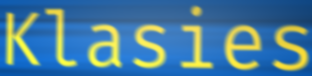
Klasies